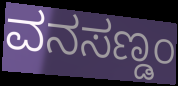
ವನಸಣ್ಡಂ